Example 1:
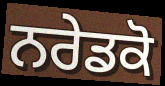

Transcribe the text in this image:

ਨਰੇਡਕੋ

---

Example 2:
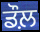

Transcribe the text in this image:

ਡੌਲ਼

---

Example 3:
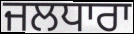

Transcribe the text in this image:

ਜਲਧਾਰਾ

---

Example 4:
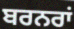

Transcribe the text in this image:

ਬਰਨਰਾਂ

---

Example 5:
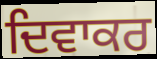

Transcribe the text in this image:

ਦਿਵਾਕਰ